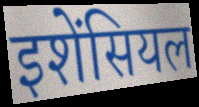
इशेंसियल